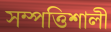
সম্পত্তিশালী